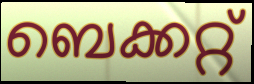
ബെക്കറ്റ്